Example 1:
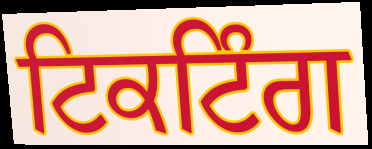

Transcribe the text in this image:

ਟਿਕਟਿੰਗ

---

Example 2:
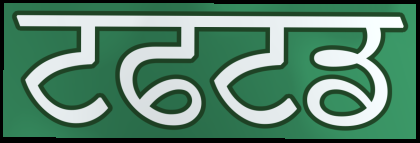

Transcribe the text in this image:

ਟਫਟਡ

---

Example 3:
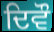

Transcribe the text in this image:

ਦਿਵੌ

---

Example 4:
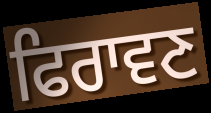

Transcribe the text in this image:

ਫਿਰਾਵਣ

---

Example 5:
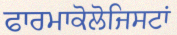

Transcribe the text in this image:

ਫਾਰਮਾਕੋਲੋਜਿਸਟਾਂ